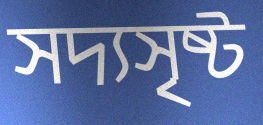
সদ্যসৃষ্ট